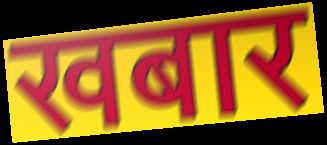
खबार